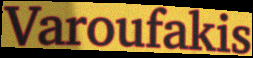
Varoufakis